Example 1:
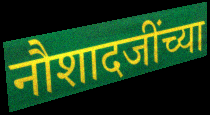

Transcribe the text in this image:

नौशादजींच्या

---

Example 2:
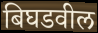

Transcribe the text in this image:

बिघडवील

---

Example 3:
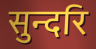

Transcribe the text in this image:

सुन्दरि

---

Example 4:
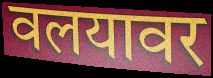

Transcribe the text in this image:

वलयावर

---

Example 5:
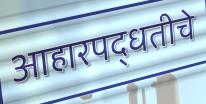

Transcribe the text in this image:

आहारपद्धतीचे